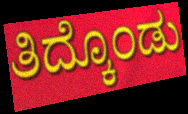
ತಿದ್ಕೊಂಡು